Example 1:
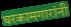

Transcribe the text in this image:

घरकामगारांनी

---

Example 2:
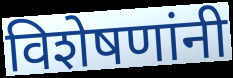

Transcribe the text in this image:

विशेषणांनी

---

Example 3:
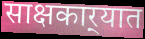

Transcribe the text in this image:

साक्षकार्यात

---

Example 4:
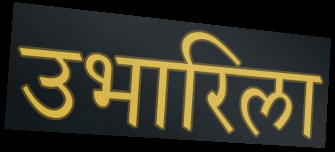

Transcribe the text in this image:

उभारिला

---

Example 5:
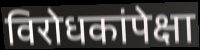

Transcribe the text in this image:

विरोधकांपेक्षा